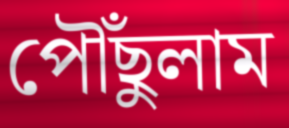
পৌঁছুলাম